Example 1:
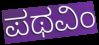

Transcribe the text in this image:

ಪಥವಿಂ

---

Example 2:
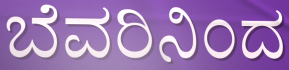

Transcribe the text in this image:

ಬೆವರಿನಿಂದ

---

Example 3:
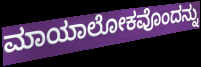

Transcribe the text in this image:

ಮಾಯಾಲೋಕವೊಂದನ್ನು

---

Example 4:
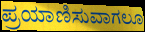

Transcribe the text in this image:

ಪ್ರಯಾಣಿಸುವಾಗಲೂ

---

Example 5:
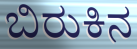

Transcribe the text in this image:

ಬಿರುಕಿನ